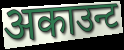
अकाउन्ट